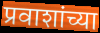
प्रवाशांच्या